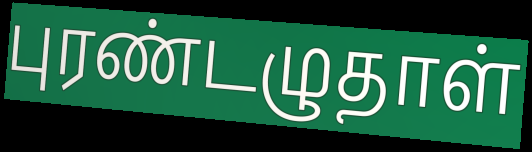
புரண்டழுதாள்